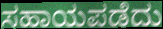
ಸಹಾಯಪಡೆದು